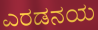
ಎರಡನಯ